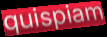
quispiam